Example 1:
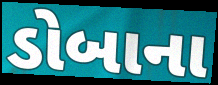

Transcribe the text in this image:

ડોબાના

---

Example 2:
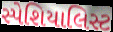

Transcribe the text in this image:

સ્પેશિયાલિસ્ટ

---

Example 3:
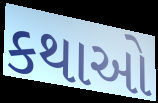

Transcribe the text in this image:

કથાઓ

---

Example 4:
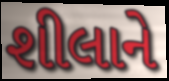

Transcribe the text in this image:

શીલાને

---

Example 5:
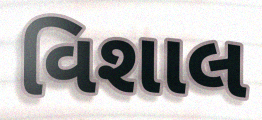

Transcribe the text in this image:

વિશાલ